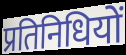
प्रतिनिधियों